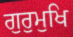
ਗੁਰੁਮੁਖਿ